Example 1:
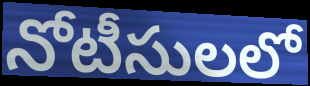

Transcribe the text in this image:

నోటీసులలో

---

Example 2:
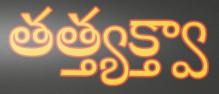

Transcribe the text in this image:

తత్త్యక్త్వా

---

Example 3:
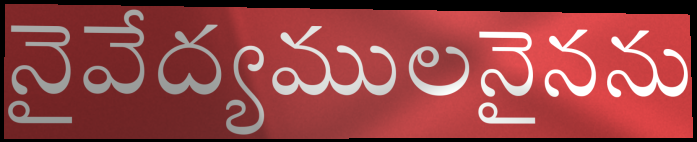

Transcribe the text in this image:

నైవేద్యములనైనను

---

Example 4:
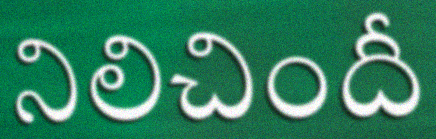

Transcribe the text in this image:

నిలిచిందీ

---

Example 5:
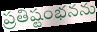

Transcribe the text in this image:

ప్రతిష్టంభనను